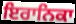
ਇਰਾਨਿਕਾ